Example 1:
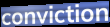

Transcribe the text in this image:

conviction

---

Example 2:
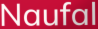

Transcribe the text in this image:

Naufal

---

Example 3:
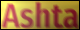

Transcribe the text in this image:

Ashta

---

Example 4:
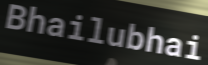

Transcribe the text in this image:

Bhailubhai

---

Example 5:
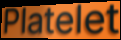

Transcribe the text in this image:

Platelet